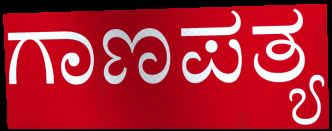
ಗಾಣಪತ್ಯ